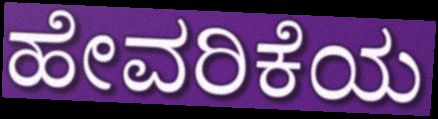
ಹೇವರಿಕೆಯ